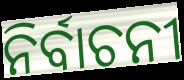
ନିର୍ବାଚନୀ